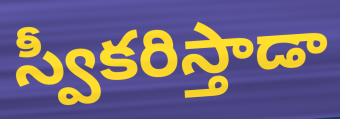
స్వీకరిస్తాడా